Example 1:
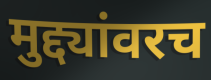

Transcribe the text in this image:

मुद्द्यांवरच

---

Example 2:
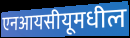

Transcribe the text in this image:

एनआयसीयूमधील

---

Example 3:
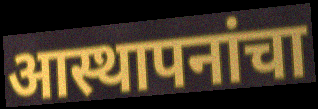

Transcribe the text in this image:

आस्थापनांचा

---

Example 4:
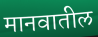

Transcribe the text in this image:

मानवातील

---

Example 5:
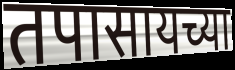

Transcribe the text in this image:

तपासायच्या